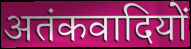
अतंकवादियों